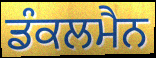
ਡੰਕਲਮੈਨ